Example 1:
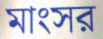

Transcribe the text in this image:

মাংসর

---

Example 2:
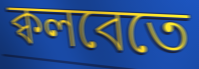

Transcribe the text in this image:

ক্বলবেতে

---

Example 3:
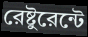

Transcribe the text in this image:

রেষ্টুরেন্টে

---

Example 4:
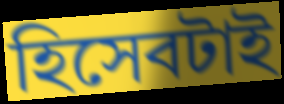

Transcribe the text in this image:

হিসেবটাই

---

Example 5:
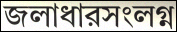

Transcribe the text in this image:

জলাধারসংলগ্ন